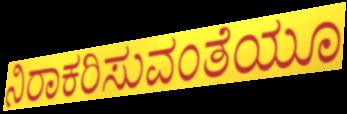
ನಿರಾಕರಿಸುವಂತೆಯೂ